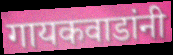
गायकवाडांनी